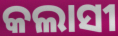
କଲାସୀ